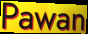
Pawan